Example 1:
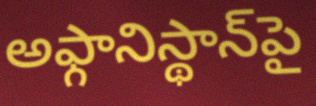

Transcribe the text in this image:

అఫ్గానిస్థాన్‌పై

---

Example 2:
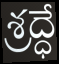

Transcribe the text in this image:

శ్రద్ధే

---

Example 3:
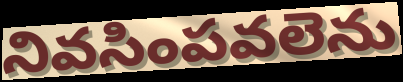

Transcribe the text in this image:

నివసింపవలెను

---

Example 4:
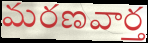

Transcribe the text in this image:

మరణవార్త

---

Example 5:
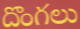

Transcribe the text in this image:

దొంగలు